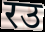
रउ